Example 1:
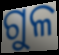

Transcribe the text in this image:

ଗୁଳ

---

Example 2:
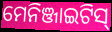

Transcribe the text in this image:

ମେନିଞ୍ଜାଇଟିସ୍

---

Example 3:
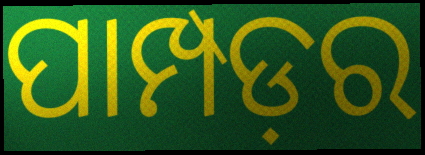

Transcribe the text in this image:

ପାମ୍ପଡ଼ର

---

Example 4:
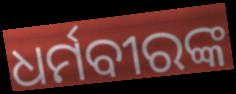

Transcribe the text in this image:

ଧର୍ମବୀରଙ୍କ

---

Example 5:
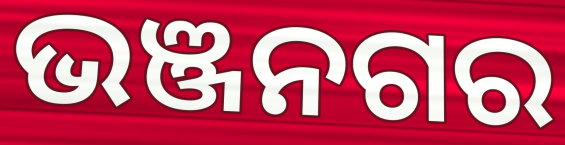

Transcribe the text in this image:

ଭଞ୍ଜନଗର